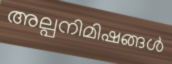
അല്പനിമിഷങ്ങൾ